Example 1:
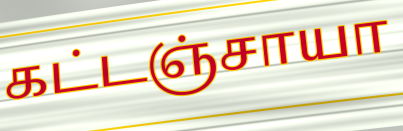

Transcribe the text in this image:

கட்டஞ்சாயா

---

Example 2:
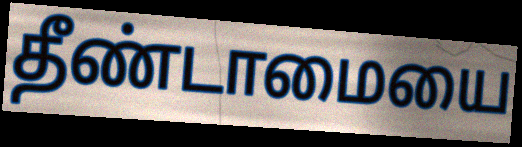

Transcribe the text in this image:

தீண்டாமையை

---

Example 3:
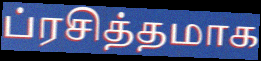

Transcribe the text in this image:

ப்ரசித்தமாக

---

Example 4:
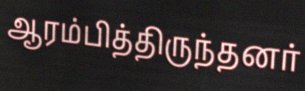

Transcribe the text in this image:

ஆரம்பித்திருந்தனர்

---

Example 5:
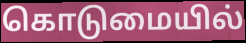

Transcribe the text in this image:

கொடுமையில்